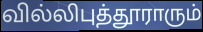
வில்லிபுத்தூராரும்